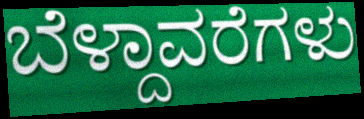
ಬೆಳ್ದಾವರೆಗಳು